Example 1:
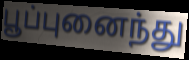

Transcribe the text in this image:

பூப்புனைந்து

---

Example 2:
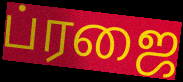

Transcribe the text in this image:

ப்ரஜை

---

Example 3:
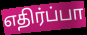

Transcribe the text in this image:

எதிர்ப்பா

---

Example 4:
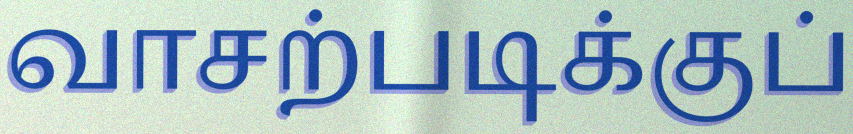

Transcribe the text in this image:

வாசற்படிக்குப்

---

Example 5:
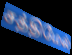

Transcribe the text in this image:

சத்திமேல்